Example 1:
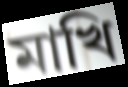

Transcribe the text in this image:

মাখি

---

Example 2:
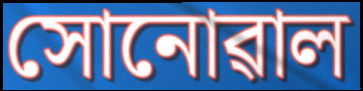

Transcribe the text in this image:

সোনোৱাল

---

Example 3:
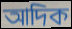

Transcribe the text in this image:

আদিক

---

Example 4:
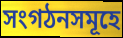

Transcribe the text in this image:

সংগঠনসমূহে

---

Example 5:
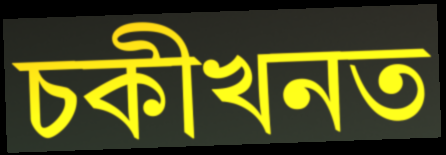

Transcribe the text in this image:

চকীখনত